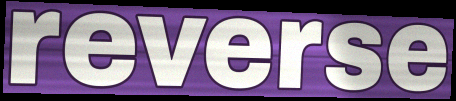
reverse